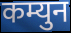
कम्युन